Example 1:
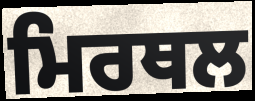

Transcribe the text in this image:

ਮਿਰਥਲ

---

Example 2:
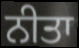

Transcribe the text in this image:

ਨੀਤਾ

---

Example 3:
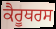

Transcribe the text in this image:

ਕੈਰੂਥਰਸ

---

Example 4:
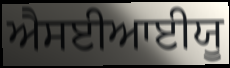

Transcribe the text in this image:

ਐਸਈਆਈਯੂ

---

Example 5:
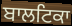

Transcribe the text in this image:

ਬਾਲਟਿਕਾ